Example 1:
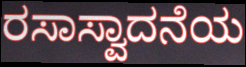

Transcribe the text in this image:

ರಸಾಸ್ವಾದನೆಯ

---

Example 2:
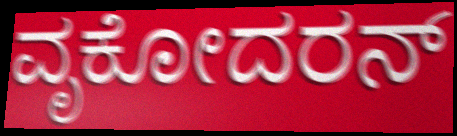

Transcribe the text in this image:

ವೃಕೋದರನ್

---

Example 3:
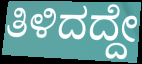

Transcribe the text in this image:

ತಿಳಿದದ್ದೇ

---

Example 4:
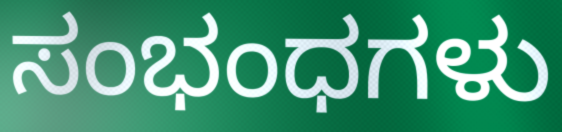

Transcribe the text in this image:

ಸಂಭಂಧಗಳು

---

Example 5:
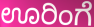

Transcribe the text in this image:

ಊರಿಂಗೆ